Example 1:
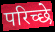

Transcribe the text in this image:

परिच्छे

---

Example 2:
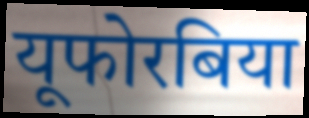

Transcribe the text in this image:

यूफोरबिया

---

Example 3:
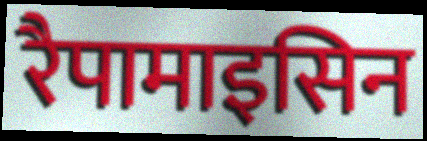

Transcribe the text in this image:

रैपामाइसिन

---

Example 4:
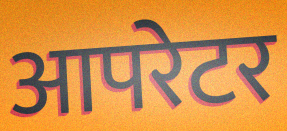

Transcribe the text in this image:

आपरेटर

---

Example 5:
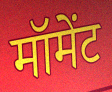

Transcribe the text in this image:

मॉमेंट